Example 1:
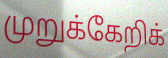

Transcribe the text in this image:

முறுக்கேறிக்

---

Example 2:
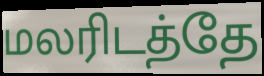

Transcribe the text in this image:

மலரிடத்தே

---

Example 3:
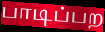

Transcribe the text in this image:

பாடிப்பற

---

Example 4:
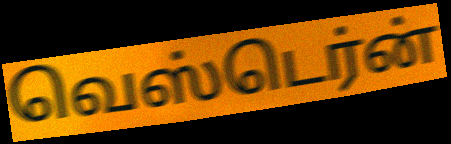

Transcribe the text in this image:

வெஸ்டெர்ன்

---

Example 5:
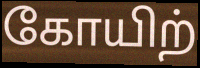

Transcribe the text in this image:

கோயிற்